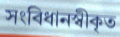
সংবিধানস্বীকৃত